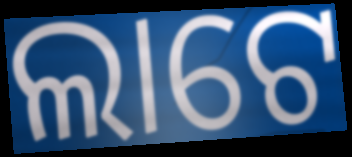
ଲାଟେ